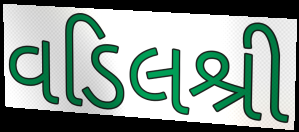
વડિલશ્રી